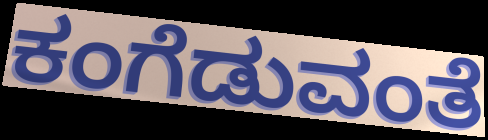
ಕಂಗೆಡುವಂತೆ